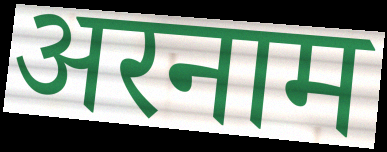
अरनाम